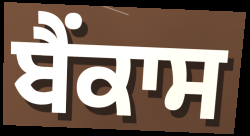
ਬੈਂਕਾਸ